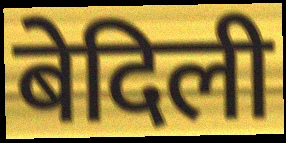
बेदिली